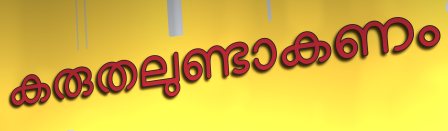
കരുതലുണ്ടാകണം